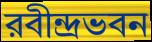
রবীন্দ্রভবন